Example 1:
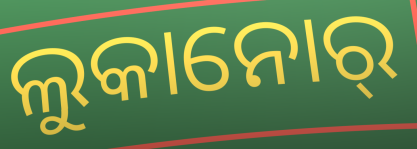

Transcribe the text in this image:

ଲୁକାନୋର୍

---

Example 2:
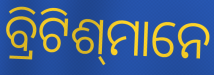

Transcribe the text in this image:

ବ୍ରିଟିଶ୍‌ମାନେ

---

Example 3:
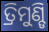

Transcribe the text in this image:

ତ୍ରିମୁଣ୍ଡି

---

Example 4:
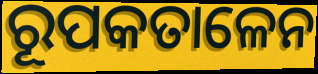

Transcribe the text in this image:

ରୂପକତାଳେନ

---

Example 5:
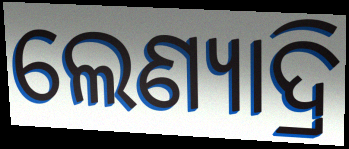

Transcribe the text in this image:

ଲେଣ୍ୟାଦ୍ରି